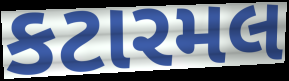
કટારમલ